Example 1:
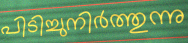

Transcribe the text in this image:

പിടിച്ചുനിർത്തുന്നു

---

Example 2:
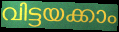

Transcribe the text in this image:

വിട്ടയക്കാം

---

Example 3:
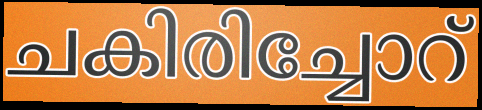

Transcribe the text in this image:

ചകിരിച്ചോറ്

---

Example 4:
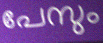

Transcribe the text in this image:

പേസും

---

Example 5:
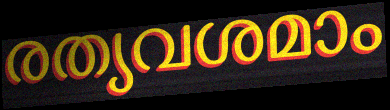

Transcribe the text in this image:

രത്യവശമാം